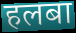
हलबा